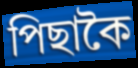
পিছাকৈ